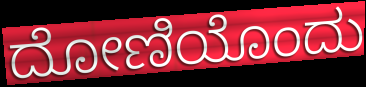
ದೋಣಿಯೊಂದು